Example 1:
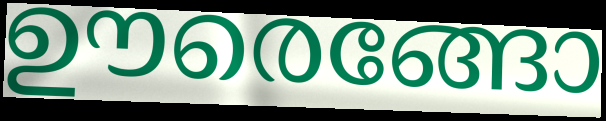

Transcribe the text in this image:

ഊരെങ്ങോ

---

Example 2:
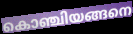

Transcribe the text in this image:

കൊഞ്ചിയങ്ങനെ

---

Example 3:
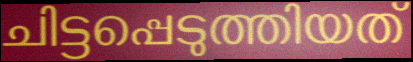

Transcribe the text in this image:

ചിട്ടപ്പെടുത്തിയത്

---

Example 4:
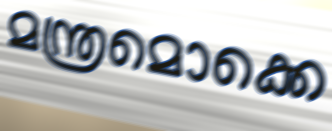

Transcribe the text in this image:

മന്ത്രമൊക്കെ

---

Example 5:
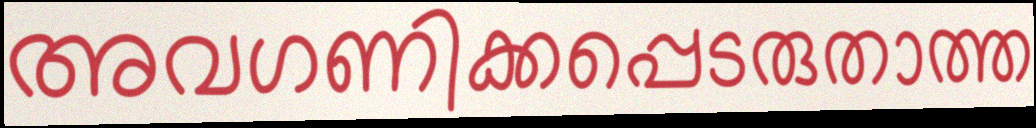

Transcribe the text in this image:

അവഗണിക്കപ്പെടരുതാത്ത